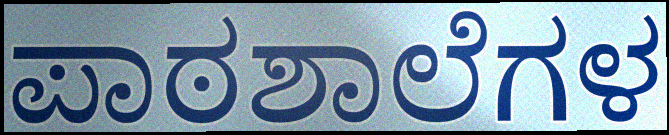
ಪಾಠಶಾಲೆಗಳ